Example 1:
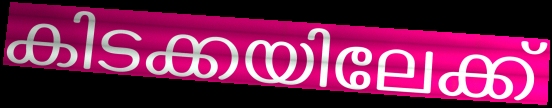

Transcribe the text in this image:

കിടക്കയിലേക്ക്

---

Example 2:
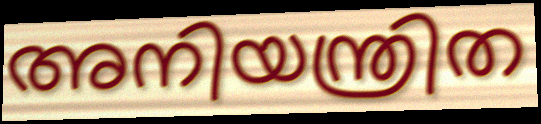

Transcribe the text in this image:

അനിയന്ത്രിത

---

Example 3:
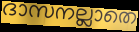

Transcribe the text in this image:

ദാസനല്ലാതെ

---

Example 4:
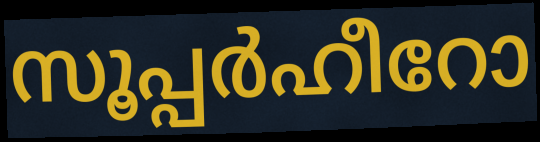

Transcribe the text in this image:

സൂപ്പർഹീറോ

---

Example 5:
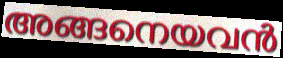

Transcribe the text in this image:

അങ്ങനെയവൻ